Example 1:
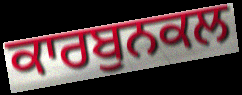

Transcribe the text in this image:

ਕਾਰਬੁਨਕਲ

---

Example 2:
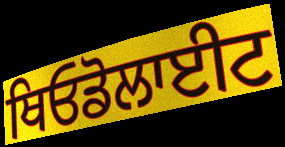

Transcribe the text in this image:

ਥਿਓਡੋਲਾਈਟ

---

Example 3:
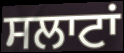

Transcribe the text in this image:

ਸਲਾਟਾਂ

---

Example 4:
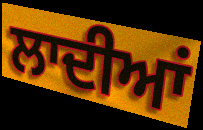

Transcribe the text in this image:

ਲਾਦੀਆਂ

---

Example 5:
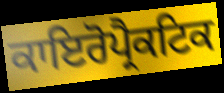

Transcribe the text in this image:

ਕਾਇਰੋਪ੍ਰੈਕਟਿਕ